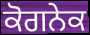
ਕੋਗਨੇਕ